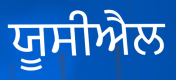
ਯੂਸੀਐਲ